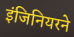
इंजिनियरने